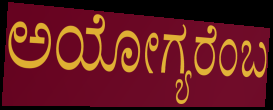
ಅಯೋಗ್ಯರೆಂಬ